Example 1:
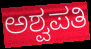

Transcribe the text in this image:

ಅಶ್ವಪತಿ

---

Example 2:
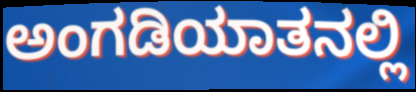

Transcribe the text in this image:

ಅಂಗಡಿಯಾತನಲ್ಲಿ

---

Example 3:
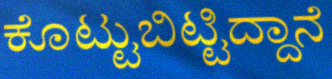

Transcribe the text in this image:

ಕೊಟ್ಟುಬಿಟ್ಟಿದ್ದಾನೆ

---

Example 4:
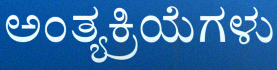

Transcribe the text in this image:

ಅಂತ್ಯಕ್ರಿಯೆಗಳು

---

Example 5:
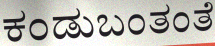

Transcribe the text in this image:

ಕಂಡುಬಂತಂತೆ